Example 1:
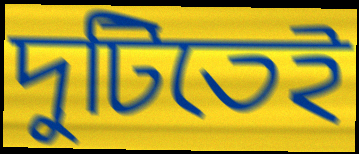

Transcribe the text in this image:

দুটিতেই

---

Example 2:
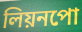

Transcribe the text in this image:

লিয়নপো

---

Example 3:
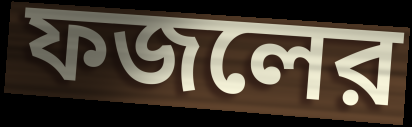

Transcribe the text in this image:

ফজলের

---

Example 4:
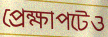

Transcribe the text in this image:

প্রেক্ষাপটেও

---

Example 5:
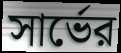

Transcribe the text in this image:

সার্ভের